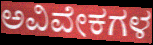
ಅವಿವೇಕಗಳ